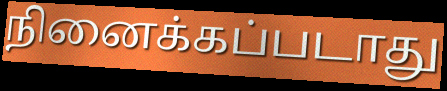
நினைக்கப்படாது